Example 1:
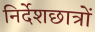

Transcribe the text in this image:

निर्देशछात्रों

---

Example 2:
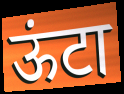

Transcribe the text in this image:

ऊंटा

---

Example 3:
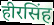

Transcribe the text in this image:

हीरसिंह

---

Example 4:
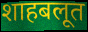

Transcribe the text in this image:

शाहबलूत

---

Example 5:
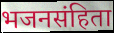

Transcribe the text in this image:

भजनसंहिता